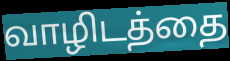
வாழிடத்தை